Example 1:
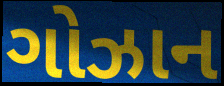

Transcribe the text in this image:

ગોઝાન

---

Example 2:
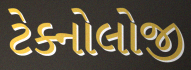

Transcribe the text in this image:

ટેક્નોલોજી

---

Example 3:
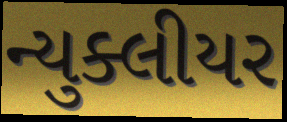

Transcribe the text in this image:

ન્યુક્લીયર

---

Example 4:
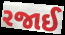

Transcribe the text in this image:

રજાઈ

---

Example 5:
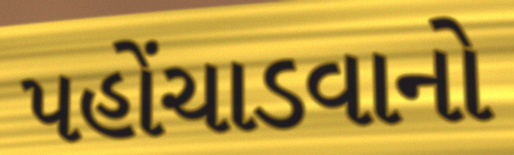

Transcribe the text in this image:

પહોંચાડવાનો